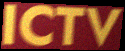
ICTV